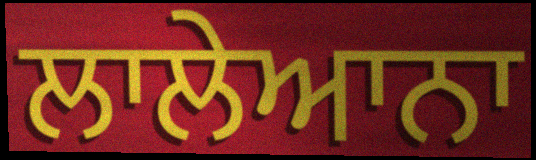
ਲਾਲੇਆਨਾ